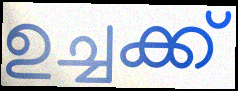
ഉച്ചക്ക്